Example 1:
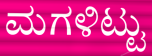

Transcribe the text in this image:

ಮಗಳಿಟ್ಟು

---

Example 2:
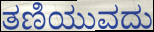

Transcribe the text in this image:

ತಣಿಯುವದು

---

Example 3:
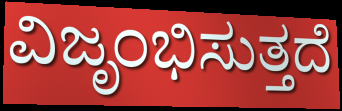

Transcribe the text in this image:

ವಿಜೃಂಭಿಸುತ್ತದೆ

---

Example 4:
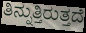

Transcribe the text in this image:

ತಿನ್ನುತ್ತಿರುತ್ತದೆ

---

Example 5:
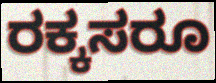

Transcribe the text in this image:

ರಕ್ಕಸರೂ